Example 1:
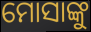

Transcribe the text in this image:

ମୋସାଙ୍କୁ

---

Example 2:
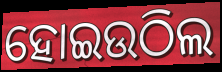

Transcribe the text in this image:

ହୋଇଉଠିଲ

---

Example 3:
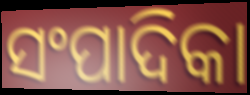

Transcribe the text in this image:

ସଂପାଦିକା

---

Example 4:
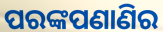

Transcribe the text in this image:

ପରଙ୍କପଣାଣିର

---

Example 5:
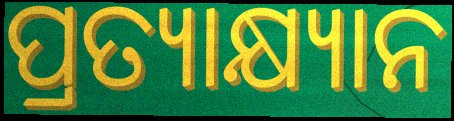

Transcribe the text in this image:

ପ୍ରତ୍ୟାକ୍ଷ୍ୟାନ